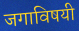
जगाविषयी